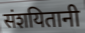
संशयितानी